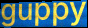
guppy